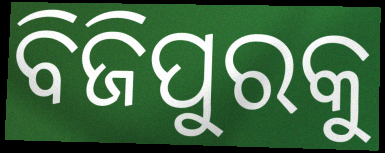
ବିଜିପୁରକୁ